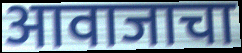
आवाजाचा